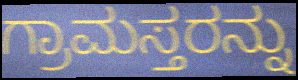
ಗ್ರಾಮಸ್ತರನ್ನು